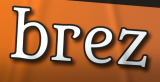
brez